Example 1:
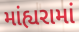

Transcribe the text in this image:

માંહ્યરામાં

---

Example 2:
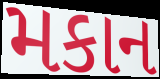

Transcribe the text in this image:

મકાન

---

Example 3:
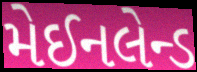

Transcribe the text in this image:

મેઈનલેન્ડ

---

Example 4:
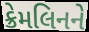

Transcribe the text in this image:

ક્રેમલિનને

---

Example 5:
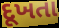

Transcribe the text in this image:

દૂખતા